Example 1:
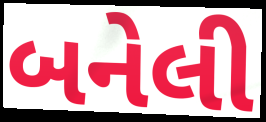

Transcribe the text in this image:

બનેલી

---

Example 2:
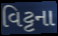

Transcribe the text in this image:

વિટ્ટના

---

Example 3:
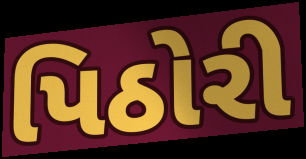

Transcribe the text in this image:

પિઠોરી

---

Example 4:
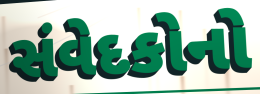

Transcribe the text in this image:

સંવેદકોનો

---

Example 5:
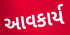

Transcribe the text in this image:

આવકાર્ય